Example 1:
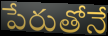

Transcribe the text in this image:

పేరుతోనే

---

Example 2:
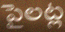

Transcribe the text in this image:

పైలట్ల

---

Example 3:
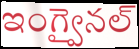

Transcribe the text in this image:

ఇంగ్వైనల్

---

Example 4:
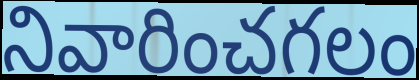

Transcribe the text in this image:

నివారించగలం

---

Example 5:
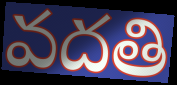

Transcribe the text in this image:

వదతి